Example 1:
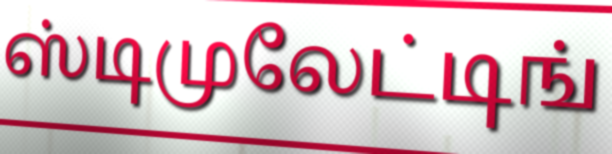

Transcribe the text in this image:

ஸ்டிமுலேட்டிங்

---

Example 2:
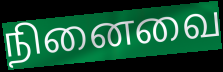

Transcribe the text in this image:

நினைவை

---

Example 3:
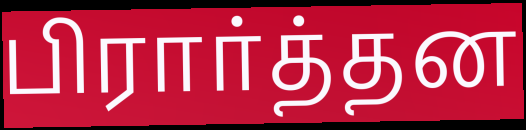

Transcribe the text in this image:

பிரார்த்தன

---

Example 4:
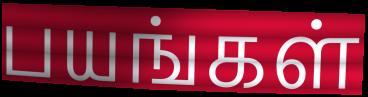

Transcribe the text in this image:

பயங்கள்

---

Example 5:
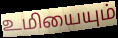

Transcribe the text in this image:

உமியையும்